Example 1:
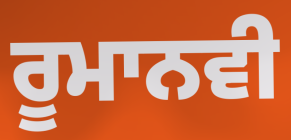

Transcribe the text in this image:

ਰੂਮਾਨਵੀ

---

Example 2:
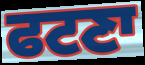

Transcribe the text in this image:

ਫਟਣਾ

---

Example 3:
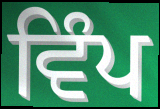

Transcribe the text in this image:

ਵਿੰਪ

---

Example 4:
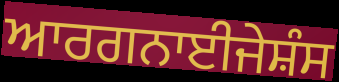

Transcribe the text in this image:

ਆਰਗਨਾਈਜੇਸ਼ੰਸ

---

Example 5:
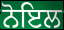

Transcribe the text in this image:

ਨੋਇਲ